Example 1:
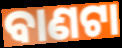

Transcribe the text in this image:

ବାଣଟା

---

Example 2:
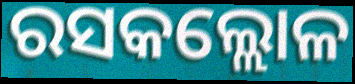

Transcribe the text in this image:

ରସକଲ୍ଲୋଳ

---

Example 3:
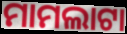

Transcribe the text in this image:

ମାମଲାଟା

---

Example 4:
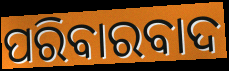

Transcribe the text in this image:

ପରିବାରବାଦ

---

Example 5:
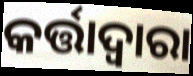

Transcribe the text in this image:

କର୍ତ୍ତାଦ୍ଵାରା